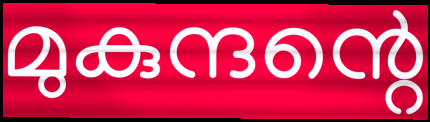
മുകുന്ദന്റെ